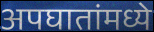
अपघातांमध्ये